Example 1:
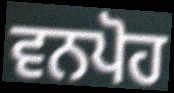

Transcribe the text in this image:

ਵਨਪੋਹ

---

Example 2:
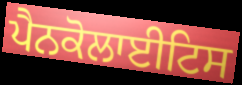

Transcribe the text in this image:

ਪੈਨਕੋਲਾਈਟਿਸ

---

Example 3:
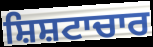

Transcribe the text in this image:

ਸ਼ਿਸ਼ਟਾਚਾਰ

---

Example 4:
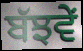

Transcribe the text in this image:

ਬੱਝਵੇਂ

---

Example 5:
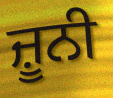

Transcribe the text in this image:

ਜ਼ੂਨੀ